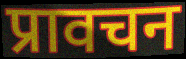
प्रावचन